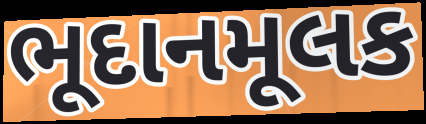
ભૂદાનમૂલક